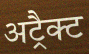
अट्रैक्ट